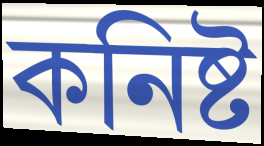
কনিষ্ট